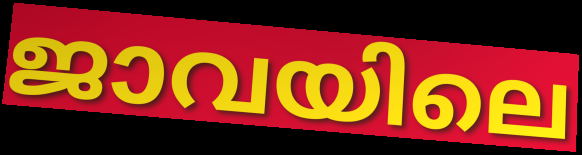
ജാവയിലെ